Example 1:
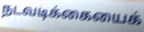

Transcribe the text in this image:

நடவடிக்கையைக்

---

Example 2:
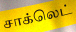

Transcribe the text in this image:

சாக்லெட்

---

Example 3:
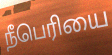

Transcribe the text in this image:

நீபெரியை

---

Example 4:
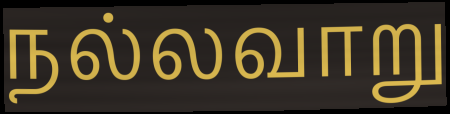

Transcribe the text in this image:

நல்லவாறு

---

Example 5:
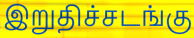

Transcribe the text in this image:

இறுதிச்சடங்கு